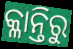
କ୍ଳାନ୍ତିରୁ